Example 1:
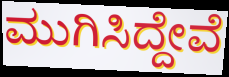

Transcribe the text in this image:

ಮುಗಿಸಿದ್ದೇವೆ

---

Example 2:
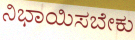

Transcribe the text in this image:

ನಿಭಾಯಿಸಬೇಕು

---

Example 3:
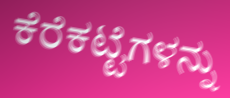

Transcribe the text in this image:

ಕೆರೆಕಟ್ಟೆಗಳನ್ನು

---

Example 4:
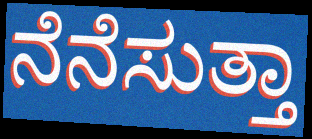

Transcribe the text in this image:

ನೆನೆಸುತ್ತಾ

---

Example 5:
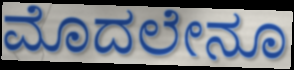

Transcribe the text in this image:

ಮೊದಲೇನೂ